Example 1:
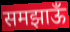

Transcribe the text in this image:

समझाऊँ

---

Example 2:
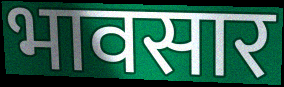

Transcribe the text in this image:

भावसार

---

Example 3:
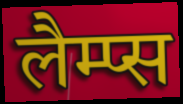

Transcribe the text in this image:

लैम्प्स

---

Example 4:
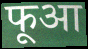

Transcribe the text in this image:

फूआ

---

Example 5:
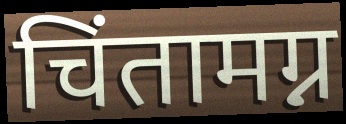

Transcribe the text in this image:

चिंतामग्न